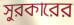
সুরকারের